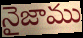
నైజాము